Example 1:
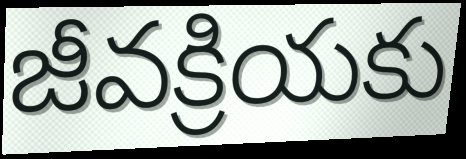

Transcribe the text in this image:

జీవక్రియకు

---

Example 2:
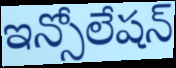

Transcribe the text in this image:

ఇన్సోలేషన్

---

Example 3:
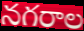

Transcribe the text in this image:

నగరాల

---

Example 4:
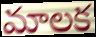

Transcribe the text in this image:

మాలక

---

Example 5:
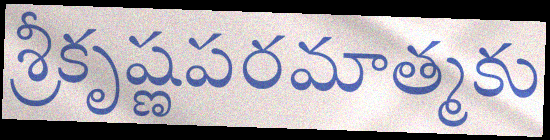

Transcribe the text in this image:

శ్రీకృష్ణపరమాత్మకు